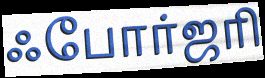
ஃபோர்ஜரி